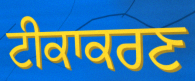
ਟੀਕਾਕਰਣ